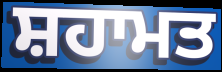
ਸ਼ਹਾਮਤ